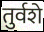
तुर्वशे